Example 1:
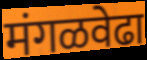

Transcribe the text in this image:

मंगळवेढा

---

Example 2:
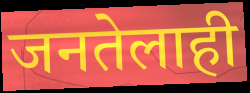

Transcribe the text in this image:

जनतेलाही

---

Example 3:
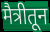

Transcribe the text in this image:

मैत्रीतून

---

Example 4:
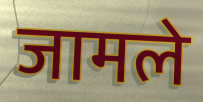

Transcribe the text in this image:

जामले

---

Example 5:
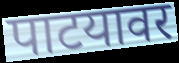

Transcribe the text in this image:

पाटयावर